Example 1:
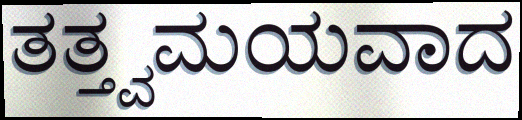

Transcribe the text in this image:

ತತ್ತ್ವಮಯವಾದ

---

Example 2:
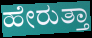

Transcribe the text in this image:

ಹೇರುತ್ತಾ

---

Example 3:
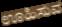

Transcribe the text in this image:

ಊಹಿಸುವ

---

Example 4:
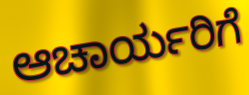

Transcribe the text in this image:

ಆಚಾರ್ಯರಿಗೆ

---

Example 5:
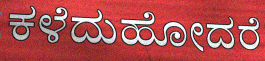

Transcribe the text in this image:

ಕಳೆದುಹೋದರೆ